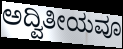
ಅದ್ವಿತೀಯವೂ